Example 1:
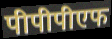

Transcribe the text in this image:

पीपीपीएफ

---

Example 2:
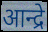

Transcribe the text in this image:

आन्द्रे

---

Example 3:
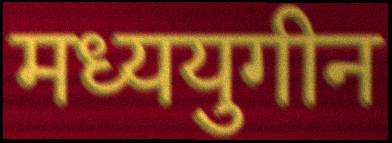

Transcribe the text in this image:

मध्ययुगीन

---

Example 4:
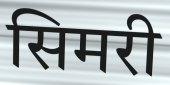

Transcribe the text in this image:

सिमरी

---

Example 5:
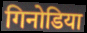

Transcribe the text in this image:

गिनोडिया